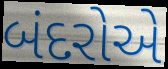
બંદરોએ